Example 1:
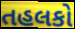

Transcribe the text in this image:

તહલકો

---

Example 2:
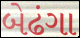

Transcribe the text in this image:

બેઢંગા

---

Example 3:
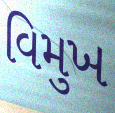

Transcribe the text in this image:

વિમુખ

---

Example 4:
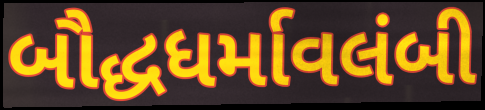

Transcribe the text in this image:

બૌદ્ધધર્માવલંબી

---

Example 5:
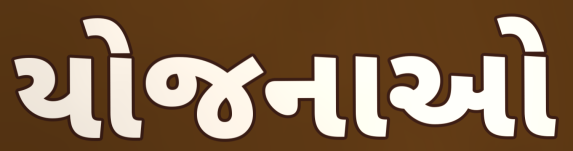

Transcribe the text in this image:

યોજનાઓ